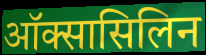
ऑक्सासिलिन